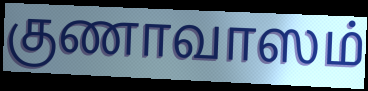
குணாவாஸம்